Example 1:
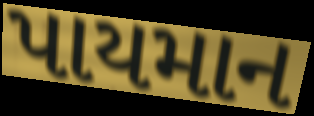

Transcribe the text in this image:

પાયમાન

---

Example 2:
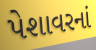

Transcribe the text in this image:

પેશાવરનાં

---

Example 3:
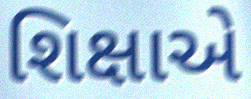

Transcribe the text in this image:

શિક્ષાએ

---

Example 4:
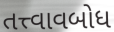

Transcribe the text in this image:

તત્ત્વાવબોધ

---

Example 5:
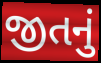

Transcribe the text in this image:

જીતનું